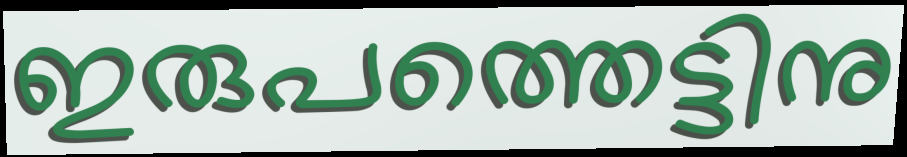
ഇരുപത്തെട്ടിനു